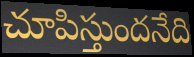
చూపిస్తుందనేది